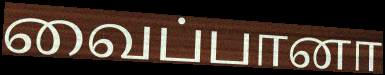
வைப்பானா